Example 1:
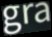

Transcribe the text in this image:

gra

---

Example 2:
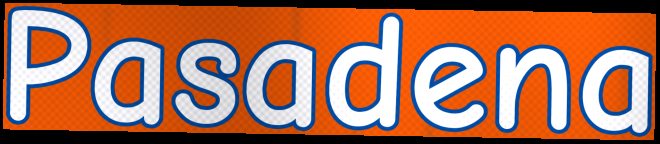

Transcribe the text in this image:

Pasadena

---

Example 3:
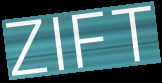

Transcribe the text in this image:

ZIFT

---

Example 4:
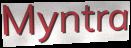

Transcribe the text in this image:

Myntra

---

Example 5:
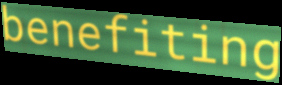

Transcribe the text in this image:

benefiting